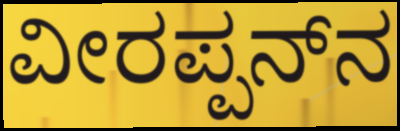
ವೀರಪ್ಪನ್‍ನ